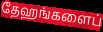
தேஹங்களைப்